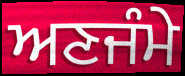
ਅਣਜੰਮੇ